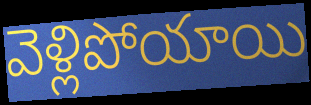
వెళ్లిపోయాయి